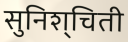
सुनिश्चिती